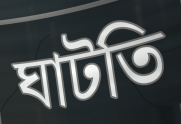
ঘাটতি